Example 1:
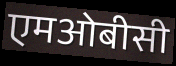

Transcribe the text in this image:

एमओबीसी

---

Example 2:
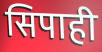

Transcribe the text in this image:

सिपाही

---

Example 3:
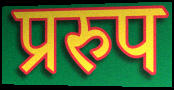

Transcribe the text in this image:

प्ररुप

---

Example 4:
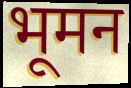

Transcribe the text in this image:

भूमन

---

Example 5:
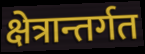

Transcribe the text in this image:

क्षेत्रान्‍तर्गत